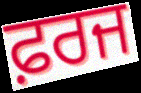
ਫ਼ਰਜ